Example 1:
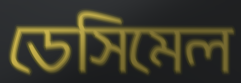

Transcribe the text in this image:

ডেসিমেল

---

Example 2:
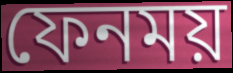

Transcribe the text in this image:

ফেনময়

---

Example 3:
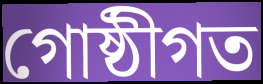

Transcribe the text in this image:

গোষ্ঠীগত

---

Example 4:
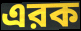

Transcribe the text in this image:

এরক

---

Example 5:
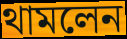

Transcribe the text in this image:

থামলেন